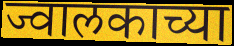
ज्वालकाच्या